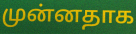
முன்னதாக